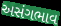
અસંગભાવ